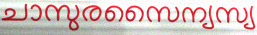
ചാസുരസൈന്യസ്യ